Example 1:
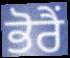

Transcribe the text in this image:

ਭੋਰੈਂ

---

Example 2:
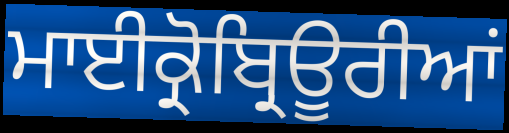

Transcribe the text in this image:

ਮਾਈਕ੍ਰੋਬ੍ਰਿਊਰੀਆਂ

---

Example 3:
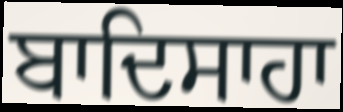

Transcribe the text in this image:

ਬਾਦਿਸਾਹਾ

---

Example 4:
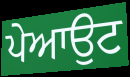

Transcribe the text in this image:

ਪੇਆਉਟ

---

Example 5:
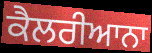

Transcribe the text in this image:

ਕੈਲਰੀਆਨਾ